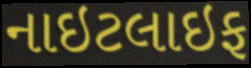
નાઇટલાઇફ